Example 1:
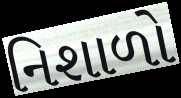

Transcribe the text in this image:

નિશાળો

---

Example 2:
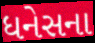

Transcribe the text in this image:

ધનેસના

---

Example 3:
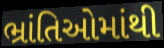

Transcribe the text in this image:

ભ્રાંતિઓમાંથી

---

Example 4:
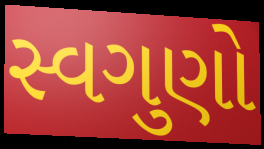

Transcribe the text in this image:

સ્વગુણો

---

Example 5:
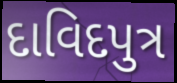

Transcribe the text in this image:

દાવિદપુત્ર